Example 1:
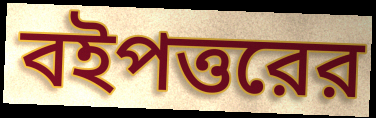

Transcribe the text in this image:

বইপত্তরের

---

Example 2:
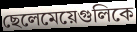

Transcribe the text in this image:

ছেলেমেয়েগুলিকে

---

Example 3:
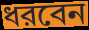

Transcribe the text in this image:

ধরবেন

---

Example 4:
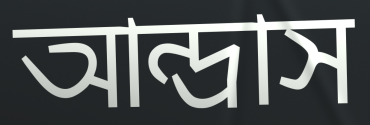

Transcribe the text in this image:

আন্দ্রাস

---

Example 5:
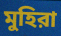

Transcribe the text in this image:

মুহিরা